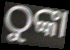
ଠୁଙ୍କା